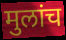
मुलांच